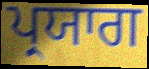
ਪ੍ਰਯਾਗ